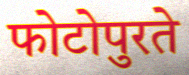
फोटोपुरते